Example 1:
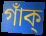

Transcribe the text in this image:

গাঁক্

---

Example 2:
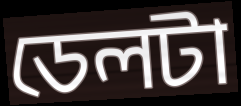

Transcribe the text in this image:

ডেলটা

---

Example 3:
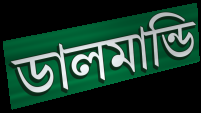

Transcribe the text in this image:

ডালমান্ডি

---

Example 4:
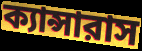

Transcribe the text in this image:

ক্যান্সারাস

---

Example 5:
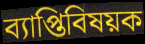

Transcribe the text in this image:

ব্যাপ্তিবিষয়ক